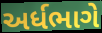
અર્ધભાગે